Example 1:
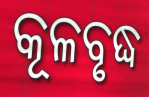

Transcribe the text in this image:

କୂଳବୃଦ୍ଧ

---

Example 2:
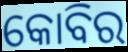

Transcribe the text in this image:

କୋବିର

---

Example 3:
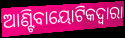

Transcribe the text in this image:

ଆଣ୍ଟିବାୟୋଟିକଦ୍ୱାରା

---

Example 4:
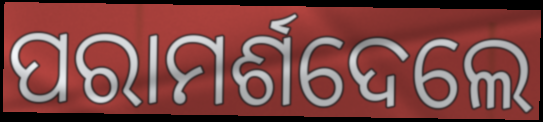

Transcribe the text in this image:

ପରାମର୍ଶଦେଲେ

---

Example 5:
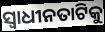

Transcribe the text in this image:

ସ୍ୱାଧୀନତାଟିକୁ